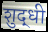
शुद्धी